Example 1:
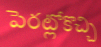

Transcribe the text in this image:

పెరట్లోకొచ్చి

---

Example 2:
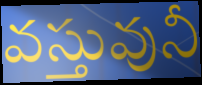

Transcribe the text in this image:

వస్తువునీ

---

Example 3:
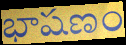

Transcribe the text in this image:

భాషణం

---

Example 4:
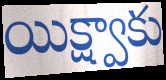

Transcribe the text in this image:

యిక్ష్వాకు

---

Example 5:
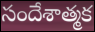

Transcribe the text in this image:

సందేశాత్మక